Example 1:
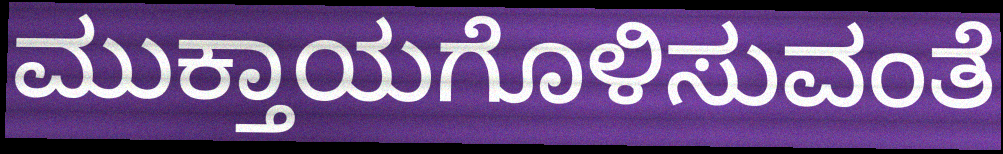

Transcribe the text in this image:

ಮುಕ್ತಾಯಗೊಳಿಸುವಂತೆ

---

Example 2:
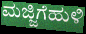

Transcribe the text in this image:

ಮಜ್ಜಿಗೆಹುಳಿ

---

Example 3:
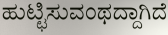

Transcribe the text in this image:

ಹುಟ್ಟಿಸುವಂಥದ್ದಾಗಿದೆ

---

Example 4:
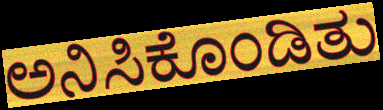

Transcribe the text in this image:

ಅನಿಸಿಕೊಂಡಿತು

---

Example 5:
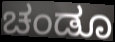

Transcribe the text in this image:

ಚಂಡೂ